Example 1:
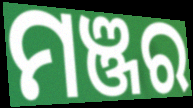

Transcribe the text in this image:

ମଞ୍ଜର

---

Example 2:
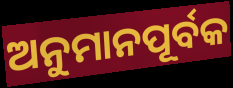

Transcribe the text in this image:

ଅନୁମାନପୂର୍ବକ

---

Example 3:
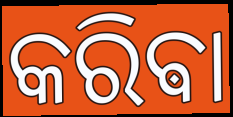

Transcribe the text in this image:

କରିଵା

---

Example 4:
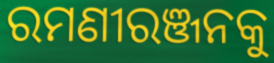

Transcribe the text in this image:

ରମଣୀରଞ୍ଜନକୁ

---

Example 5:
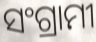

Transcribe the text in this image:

ସଂଗ୍ରାମୀ